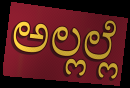
ಅಲ್ಲಲ್ಲೆ